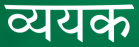
व्ययक